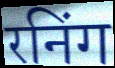
रनिंग